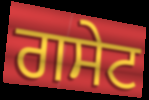
ਗਸੇਟ